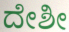
ದೇಶೀ